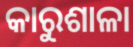
କାରୁଶାଳା